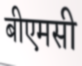
बीएमसी